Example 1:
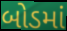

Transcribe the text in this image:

બોડમાં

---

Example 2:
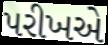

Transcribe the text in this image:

પરીખએ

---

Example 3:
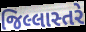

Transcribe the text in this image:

જિલ્લાસ્તરે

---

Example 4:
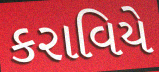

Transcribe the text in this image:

કરાવિયે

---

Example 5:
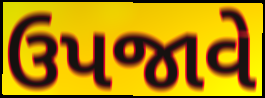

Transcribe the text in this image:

ઉપજાવે